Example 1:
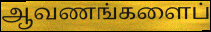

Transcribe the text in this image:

ஆவணங்களைப்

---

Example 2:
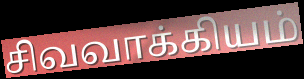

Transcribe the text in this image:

சிவவாக்கியம்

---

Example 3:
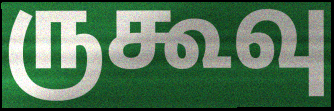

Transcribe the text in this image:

ருகூவு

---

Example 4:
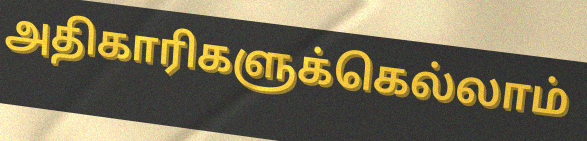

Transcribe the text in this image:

அதிகாரிகளுக்கெல்லாம்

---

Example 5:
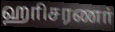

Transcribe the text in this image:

ஹரிசரணர்